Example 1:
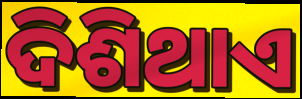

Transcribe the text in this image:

ଦିଶିଥାଏ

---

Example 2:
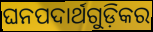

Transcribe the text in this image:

ଘନପଦାର୍ଥଗୁଡ଼ିକର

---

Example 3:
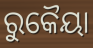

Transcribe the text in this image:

ରୁକୈୟା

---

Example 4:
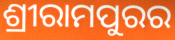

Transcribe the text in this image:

ଶ୍ରୀରାମପୁରର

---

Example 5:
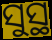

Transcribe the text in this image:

ସୁସ୍ଥ